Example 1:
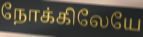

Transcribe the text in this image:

நோக்கிலேயே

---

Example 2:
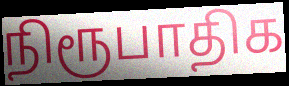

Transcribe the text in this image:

நிரூபாதிக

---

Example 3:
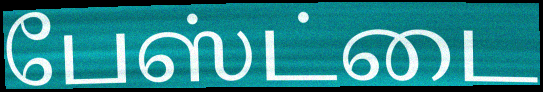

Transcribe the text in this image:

பேஸ்ட்டை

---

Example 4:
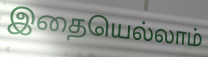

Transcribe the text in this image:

இதையெல்லாம்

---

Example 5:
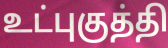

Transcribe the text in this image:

உட்புகுத்தி